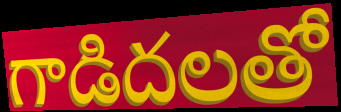
గాడిదలతో